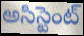
అసిస్టెంట్